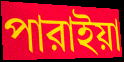
পারাইয়া